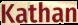
Kathan